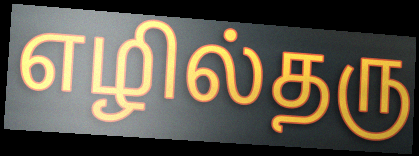
எழில்தரு